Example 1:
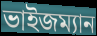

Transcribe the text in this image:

ভাইজম্যান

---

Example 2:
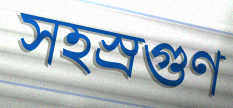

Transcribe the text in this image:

সহস্রগুণ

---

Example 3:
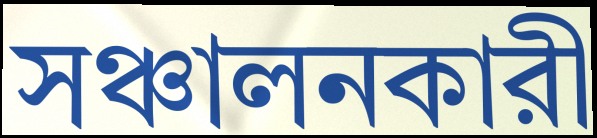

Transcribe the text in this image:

সঞ্চালনকারী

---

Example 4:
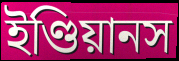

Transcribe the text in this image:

ইণ্ডিয়ানস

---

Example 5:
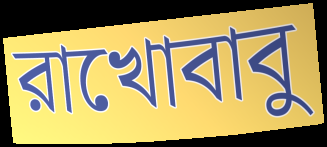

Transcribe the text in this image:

রাখোবাবু